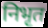
निभृत